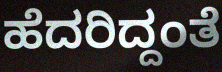
ಹೆದರಿದ್ದಂತೆ